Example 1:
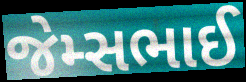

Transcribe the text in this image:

જેમ્સભાઈ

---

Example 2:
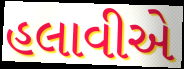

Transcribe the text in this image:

હલાવીએ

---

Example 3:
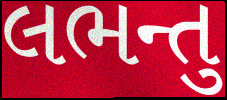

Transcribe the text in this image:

લભન્તુ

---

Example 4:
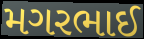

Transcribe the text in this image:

મગરભાઈ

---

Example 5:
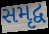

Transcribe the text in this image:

સમૃદ્વ